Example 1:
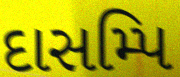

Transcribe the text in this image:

દાસમ્પિ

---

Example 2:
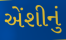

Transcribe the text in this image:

એંશીનું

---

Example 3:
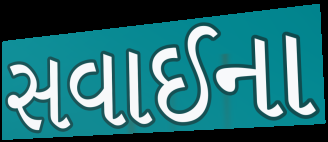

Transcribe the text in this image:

સવાઈના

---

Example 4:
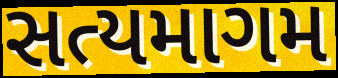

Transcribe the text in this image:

સત્યમાગમ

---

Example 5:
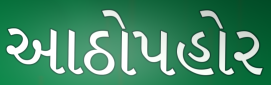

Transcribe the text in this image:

આઠોપહોર